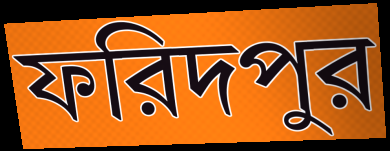
ফরিদপুর